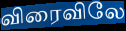
விரைவிலே